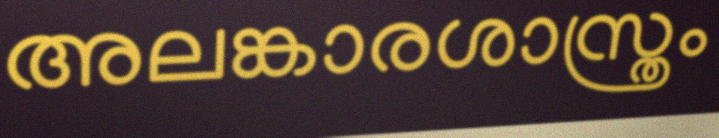
അലങ്കാരശാസ്ത്രം